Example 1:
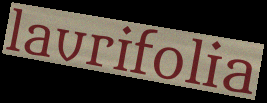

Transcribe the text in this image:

laurifolia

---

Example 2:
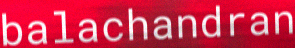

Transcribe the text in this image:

balachandran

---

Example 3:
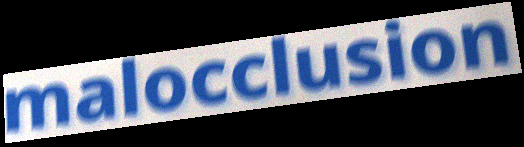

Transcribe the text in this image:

malocclusion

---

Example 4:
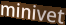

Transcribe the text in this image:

minivet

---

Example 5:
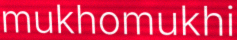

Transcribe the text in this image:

mukhomukhi